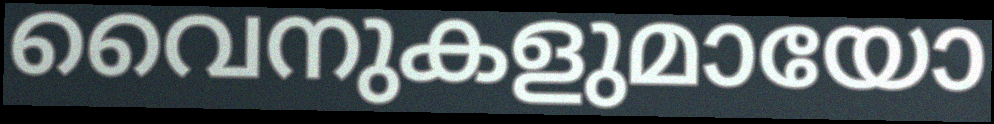
വൈനുകളുമായോ